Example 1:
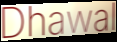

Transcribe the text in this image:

Dhawal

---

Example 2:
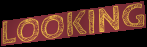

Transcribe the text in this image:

LOOKING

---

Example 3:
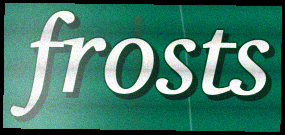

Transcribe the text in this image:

frosts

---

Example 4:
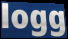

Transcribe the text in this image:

logg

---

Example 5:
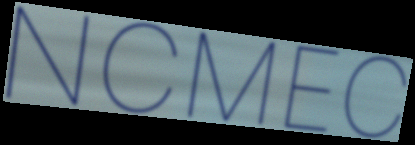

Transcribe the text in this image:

NCMEC